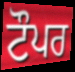
ਟੌਪਰ